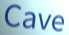
Cave